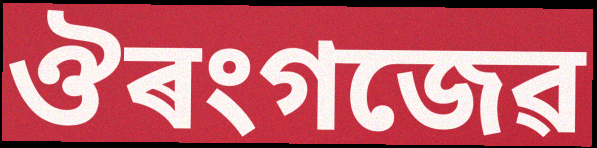
ঔৰংগজেৱ